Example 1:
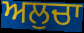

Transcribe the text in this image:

ਅਲੁਚਾ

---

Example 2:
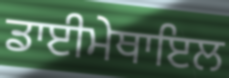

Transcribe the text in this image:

ਡਾਈਮੇਥਾਇਲ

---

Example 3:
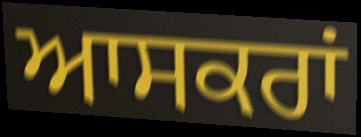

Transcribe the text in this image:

ਆਸਕਰਾਂ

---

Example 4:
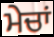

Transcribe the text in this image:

ਮੇਚਾਂ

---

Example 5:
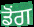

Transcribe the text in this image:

ਡੋਂਗ